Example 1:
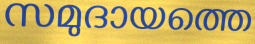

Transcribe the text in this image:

സമുദായത്തെ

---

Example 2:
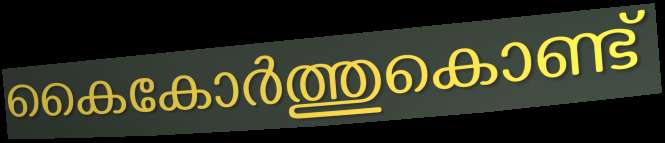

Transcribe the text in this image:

കൈകോർത്തുകൊണ്ട്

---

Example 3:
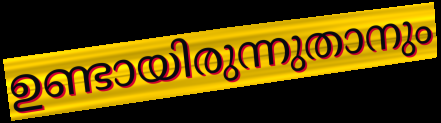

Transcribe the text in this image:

ഉണ്ടായിരുന്നുതാനും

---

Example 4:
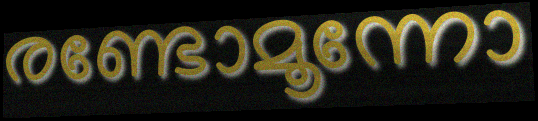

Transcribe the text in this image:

രണ്ടോമൂന്നോ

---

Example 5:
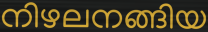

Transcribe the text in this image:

നിഴലനങ്ങിയ